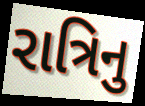
રાત્રિનુ